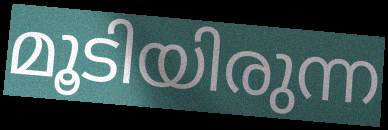
മൂടിയിരുന്ന